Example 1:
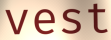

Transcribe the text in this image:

vest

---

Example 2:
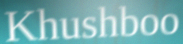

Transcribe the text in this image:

Khushboo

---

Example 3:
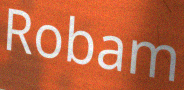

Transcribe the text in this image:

Robam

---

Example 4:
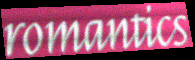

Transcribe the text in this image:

romantics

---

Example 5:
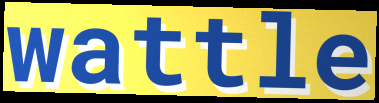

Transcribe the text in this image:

wattle